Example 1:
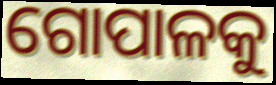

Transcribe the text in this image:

ଗୋପାଳକୁ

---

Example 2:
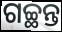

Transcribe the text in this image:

ଗଚ୍ଛନ୍ତ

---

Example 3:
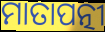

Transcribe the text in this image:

ମାତାପତ୍ନୀ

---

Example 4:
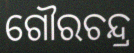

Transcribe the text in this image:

ଗୌରଚନ୍ଦ୍ର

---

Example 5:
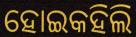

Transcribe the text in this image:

ହୋଇକହିଲି